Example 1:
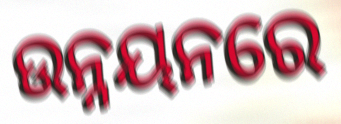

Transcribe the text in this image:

ଉନ୍ନୟନରେ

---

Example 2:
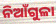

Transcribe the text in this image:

ନିଆଁଗୁଳା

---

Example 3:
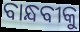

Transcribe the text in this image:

ବାନ୍ଧବୀକୁ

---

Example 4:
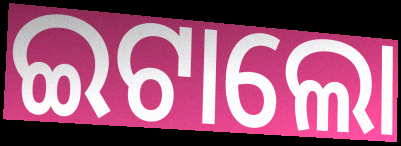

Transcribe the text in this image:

ଇଟାଲୋ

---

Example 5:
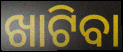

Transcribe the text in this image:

ଖାଟିବା